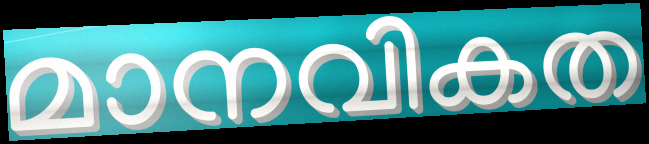
മാനവികത